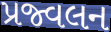
પ્રજ્વલન